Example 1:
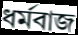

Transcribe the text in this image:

ধর্মবাজ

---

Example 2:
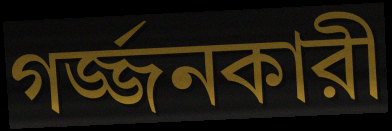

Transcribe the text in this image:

গর্জ্জনকারী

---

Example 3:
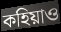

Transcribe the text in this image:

কহিয়াও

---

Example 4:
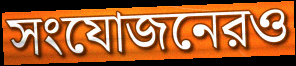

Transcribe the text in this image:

সংযোজনেরও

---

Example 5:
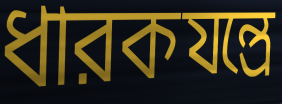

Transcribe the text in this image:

ধারকযন্ত্রে